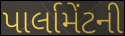
પાર્લામેંટની